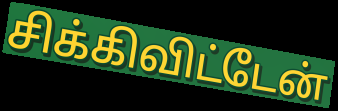
சிக்கிவிட்டேன்